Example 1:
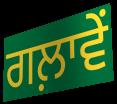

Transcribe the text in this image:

ਗਲ਼ਾਵੇਂ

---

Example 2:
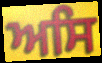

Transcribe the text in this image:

ਅਸਿ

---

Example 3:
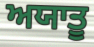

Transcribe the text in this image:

ਅਯਾਤੂ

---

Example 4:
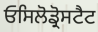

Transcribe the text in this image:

ਓਸਿਲੋਡ੍ਰੋਸਟੈਟ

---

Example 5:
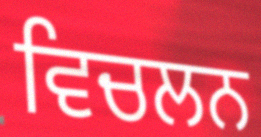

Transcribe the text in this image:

ਵਿਚਲਨ